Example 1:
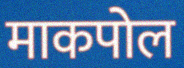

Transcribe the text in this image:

माकपोल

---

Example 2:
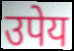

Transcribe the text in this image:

उपेय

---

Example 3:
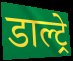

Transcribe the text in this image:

डाल्ट्रे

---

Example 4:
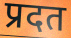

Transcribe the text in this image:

प्रदत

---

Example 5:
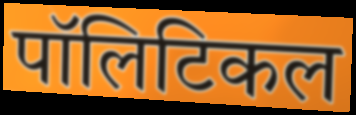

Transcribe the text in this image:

पॉलिटिकल